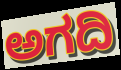
ಅಗದಿ